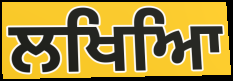
ਲਖਿਆਿ